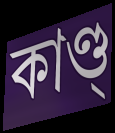
কাণ্ড্